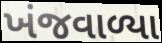
ખંજવાળ્યા